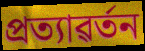
প্ৰত্যাৱৰ্তন